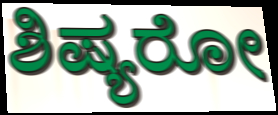
ಶಿಷ್ಯರೋ